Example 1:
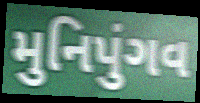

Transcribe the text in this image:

મુનિપુંગવ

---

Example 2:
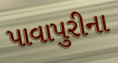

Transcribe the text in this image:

પાવાપુરીના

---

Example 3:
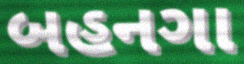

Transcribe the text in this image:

બહનગા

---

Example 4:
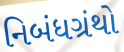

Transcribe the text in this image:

નિબંધગ્રંથો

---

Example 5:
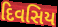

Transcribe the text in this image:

દિવસિય